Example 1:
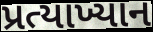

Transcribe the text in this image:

પ્રત્યાખ્યાન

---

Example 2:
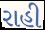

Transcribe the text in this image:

રાહી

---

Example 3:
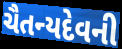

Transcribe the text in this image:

ચૈતન્યદેવની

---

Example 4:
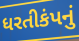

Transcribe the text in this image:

ધરતીકંપનું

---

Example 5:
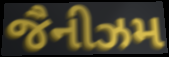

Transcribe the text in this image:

જૈનીઝમ